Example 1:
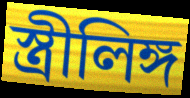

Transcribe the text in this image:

স্ত্ৰীলিঙ্গ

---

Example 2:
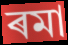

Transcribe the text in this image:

ৰমা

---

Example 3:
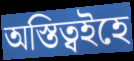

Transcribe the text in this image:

অস্তিত্বইহে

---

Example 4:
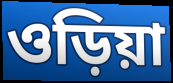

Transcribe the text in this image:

ওড়িয়া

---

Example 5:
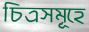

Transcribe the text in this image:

চিত্ৰসমূহে